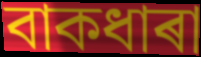
বাকধাৰা